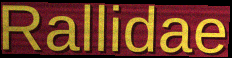
Rallidae